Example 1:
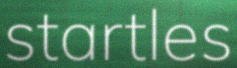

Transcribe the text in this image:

startles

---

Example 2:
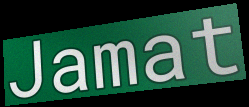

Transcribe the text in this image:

Jamat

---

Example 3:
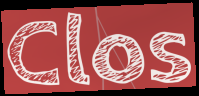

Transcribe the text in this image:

Clos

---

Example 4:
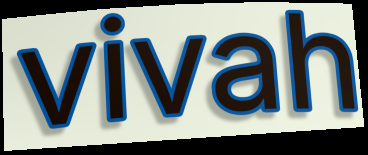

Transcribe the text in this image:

vivah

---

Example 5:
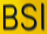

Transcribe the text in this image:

BSI